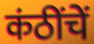
कंठींचें